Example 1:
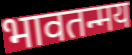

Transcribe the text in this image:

भावतन्मय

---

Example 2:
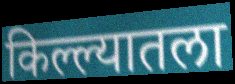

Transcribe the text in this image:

किल्ल्यातला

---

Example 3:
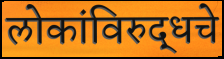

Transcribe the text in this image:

लोकांविरुद्धचे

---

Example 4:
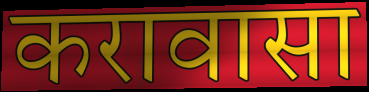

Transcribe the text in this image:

करावासा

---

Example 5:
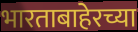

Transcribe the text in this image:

भारताबाहेरच्या